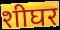
शीघर